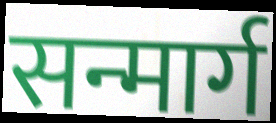
सन्‍मार्ग